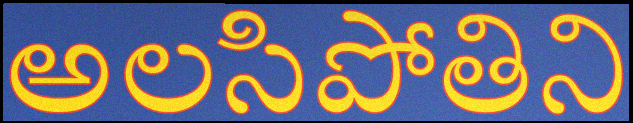
అలసిపోతిని